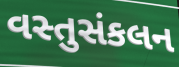
વસ્તુસંકલન